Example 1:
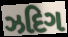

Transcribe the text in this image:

ઝદિગ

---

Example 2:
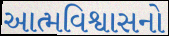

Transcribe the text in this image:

આત્મવિશ્વાસનો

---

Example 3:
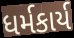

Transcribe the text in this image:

ધર્મકાર્ય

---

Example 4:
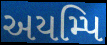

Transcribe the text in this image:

અયમ્પિ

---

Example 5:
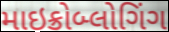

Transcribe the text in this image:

માઇક્રોબ્લોગિંગ